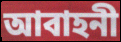
আবাহনী